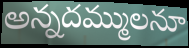
అన్నదమ్ములనూ